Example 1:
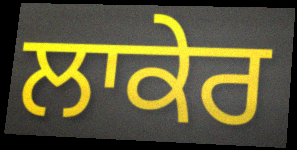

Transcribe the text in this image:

ਲਾਕੇਰ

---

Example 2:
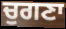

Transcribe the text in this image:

ਚੁਗਣਾ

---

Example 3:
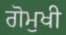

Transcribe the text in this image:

ਗੋਮੁਖੀ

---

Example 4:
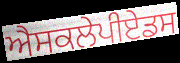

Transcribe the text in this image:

ਐਸਕਲੇਪੀਏਡਸ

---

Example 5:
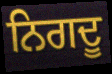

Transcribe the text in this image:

ਨਿਗਦੂ